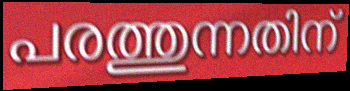
പരത്തുന്നതിന്